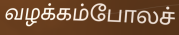
வழக்கம்போலச்